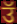
उॅ